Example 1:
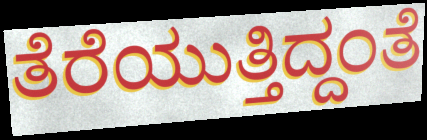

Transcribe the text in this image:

ತೆರೆಯುತ್ತಿದ್ದಂತೆ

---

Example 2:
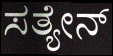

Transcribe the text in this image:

ಸತ್ಯೇನ್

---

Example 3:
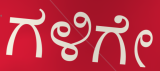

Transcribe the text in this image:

ಗಳಿಗೇ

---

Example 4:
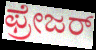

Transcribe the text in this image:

ಫ್ರೇಜರ್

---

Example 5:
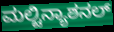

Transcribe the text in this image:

ಮಲ್ಟಿನ್ಯಾಶನಲ್